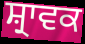
ਸ਼੍ਰਾਵਕ